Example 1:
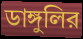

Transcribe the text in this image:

ডাঙ্গুলির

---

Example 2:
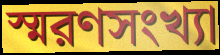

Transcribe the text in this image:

স্মরণসংখ্যা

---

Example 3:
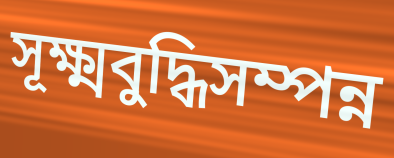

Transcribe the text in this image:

সূক্ষ্মবুদ্ধিসম্পন্ন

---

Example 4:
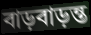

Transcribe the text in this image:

বাড়বাড়ন্ত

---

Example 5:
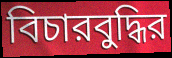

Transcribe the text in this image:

বিচারবুদ্ধির